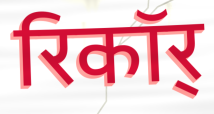
रिकॉर्